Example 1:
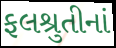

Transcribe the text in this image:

ફલશ્રુતીનાં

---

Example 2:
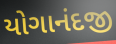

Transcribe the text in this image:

યોગાનંદજી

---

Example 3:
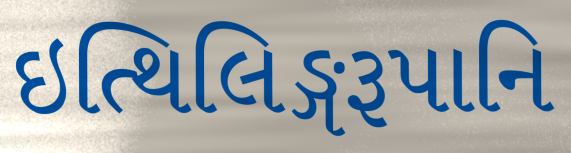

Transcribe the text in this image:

ઇત્થિલિઙ્ગરૂપાનિ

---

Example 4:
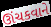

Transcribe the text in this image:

ઊંચકવાને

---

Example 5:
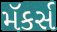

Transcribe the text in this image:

મૅકર્સ